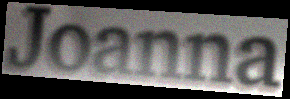
Joanna